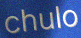
chulo